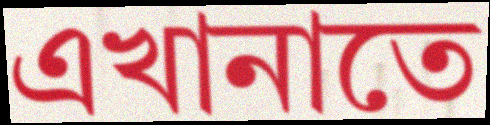
এখানাতে